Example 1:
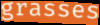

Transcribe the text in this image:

grasses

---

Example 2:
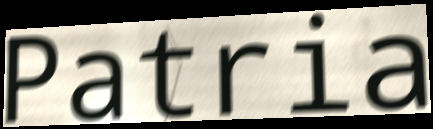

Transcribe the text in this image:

Patria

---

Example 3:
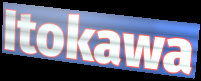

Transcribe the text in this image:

Itokawa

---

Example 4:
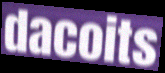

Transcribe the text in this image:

dacoits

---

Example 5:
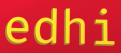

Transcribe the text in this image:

edhi